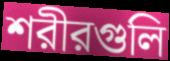
শরীরগুলি